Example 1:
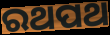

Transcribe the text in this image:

ରଥପଥ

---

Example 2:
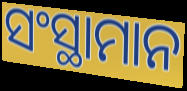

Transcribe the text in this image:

ସଂସ୍ଥାମାନ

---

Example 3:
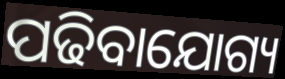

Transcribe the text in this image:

ପଢିବାଯୋଗ୍ୟ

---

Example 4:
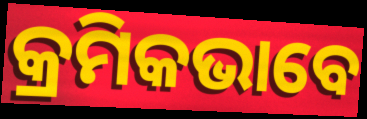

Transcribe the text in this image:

କ୍ରମିକଭାବେ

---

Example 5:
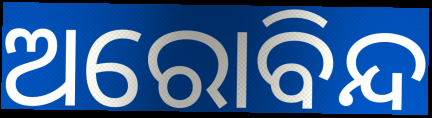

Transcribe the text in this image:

ଅରୋବିନ୍ଦ